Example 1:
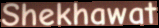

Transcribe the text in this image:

Shekhawat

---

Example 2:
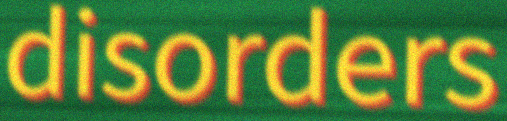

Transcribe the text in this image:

disorders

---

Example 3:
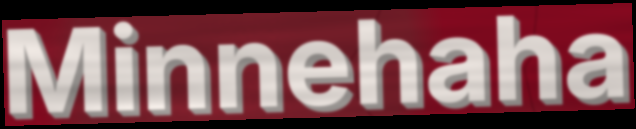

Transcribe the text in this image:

Minnehaha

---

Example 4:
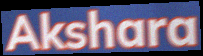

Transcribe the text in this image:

Akshara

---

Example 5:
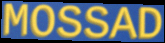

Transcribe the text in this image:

MOSSAD